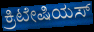
ಕ್ರಿಟೇಷಿಯಸ್